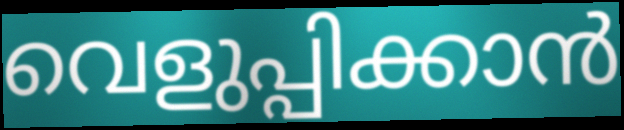
വെളുപ്പിക്കാൻ